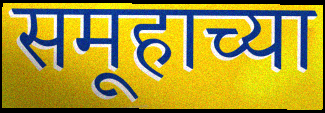
समूहाच्या